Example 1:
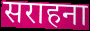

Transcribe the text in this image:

सराहना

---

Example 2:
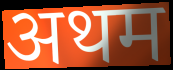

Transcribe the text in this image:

अथम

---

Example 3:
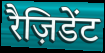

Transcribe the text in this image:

रैज़िडेंट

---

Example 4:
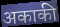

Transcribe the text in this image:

अकाकी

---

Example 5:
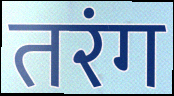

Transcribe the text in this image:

तरंग